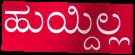
ಹುಯ್ದಿಲ್ಲ